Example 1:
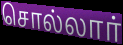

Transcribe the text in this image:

சொல்லார்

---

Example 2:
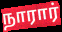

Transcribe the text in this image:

நாரார்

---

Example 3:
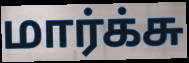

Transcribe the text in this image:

மார்க்சு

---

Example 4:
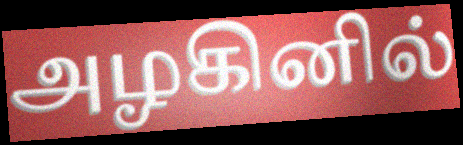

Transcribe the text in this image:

அழகினில்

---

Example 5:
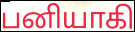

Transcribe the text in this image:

பனியாகி